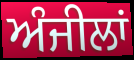
ਅੰਜੀਲਾਂ